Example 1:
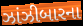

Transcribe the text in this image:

ઝાંઝીબારના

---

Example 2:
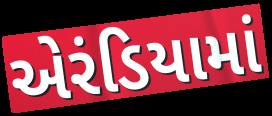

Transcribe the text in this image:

એરંડિયામાં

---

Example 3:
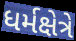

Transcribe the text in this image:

ધર્મક્ષેત્રે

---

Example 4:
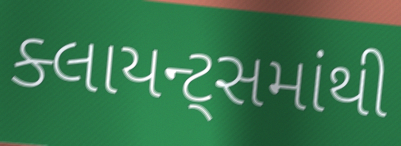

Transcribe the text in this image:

ક્લાયન્ટ્સમાંથી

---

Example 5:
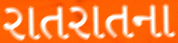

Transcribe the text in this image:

રાતરાતના